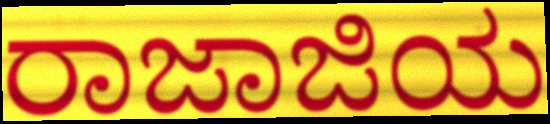
ರಾಜಾಜಿಯ